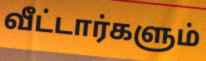
வீட்டார்களும்